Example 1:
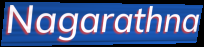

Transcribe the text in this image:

Nagarathna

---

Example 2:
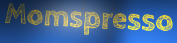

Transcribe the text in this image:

Momspresso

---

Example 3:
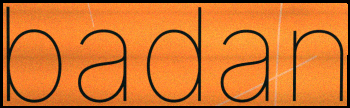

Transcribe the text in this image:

badan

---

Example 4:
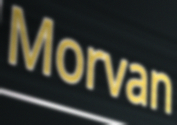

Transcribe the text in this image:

Morvan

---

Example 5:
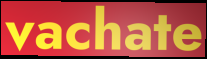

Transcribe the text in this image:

vachate